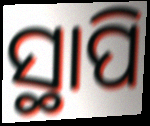
ସ୍ଥାପି